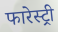
फारेस्ट्री